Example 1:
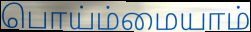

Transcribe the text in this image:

பொய்ம்மையாம்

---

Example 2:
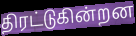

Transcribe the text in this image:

திரட்டுகின்றன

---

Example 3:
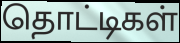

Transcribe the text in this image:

தொட்டிகள்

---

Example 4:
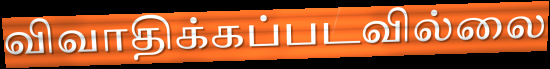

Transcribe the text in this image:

விவாதிக்கப்படவில்லை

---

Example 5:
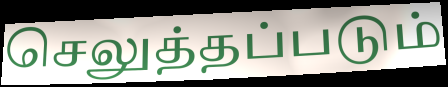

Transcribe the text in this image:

செலுத்தப்படும்